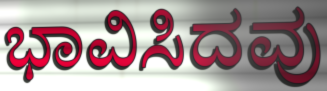
ಭಾವಿಸಿದವು